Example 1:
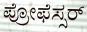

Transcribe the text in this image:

ಪ್ರೋಫೆಸ್ಸರ್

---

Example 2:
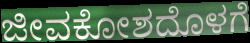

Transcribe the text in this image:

ಜೀವಕೋಶದೊಳಗೆ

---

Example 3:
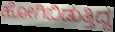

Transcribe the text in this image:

ಹೋಗಿಬಿಡುತ್ತಿದ್ದ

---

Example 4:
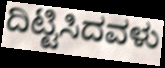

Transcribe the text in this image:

ದಿಟ್ಟಿಸಿದವಳು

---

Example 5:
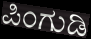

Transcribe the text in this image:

ಪಿಂಗುಡಿ